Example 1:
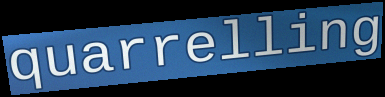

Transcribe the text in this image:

quarrelling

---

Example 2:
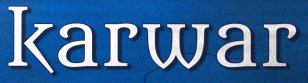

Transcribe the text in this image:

karwar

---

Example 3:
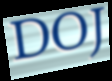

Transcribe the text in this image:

DOJ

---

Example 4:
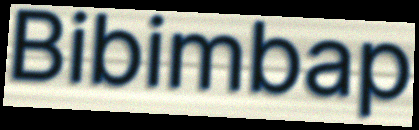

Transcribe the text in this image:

Bibimbap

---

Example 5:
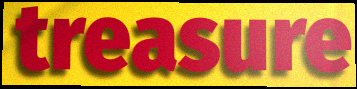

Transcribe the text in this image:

treasure